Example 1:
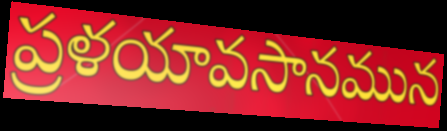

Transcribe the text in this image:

ప్రళయావసానమున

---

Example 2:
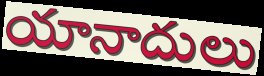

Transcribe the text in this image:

యానాదులు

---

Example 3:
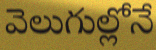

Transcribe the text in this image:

వెలుగుల్లోనే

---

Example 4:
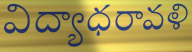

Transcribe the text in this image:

విద్యాధరావళి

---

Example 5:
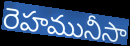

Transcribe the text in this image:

రెహమునీసా